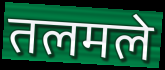
तलमले